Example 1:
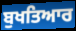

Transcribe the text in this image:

ਬੁਖਤਿਆਰ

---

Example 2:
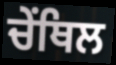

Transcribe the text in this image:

ਚੇਂਥਿਲ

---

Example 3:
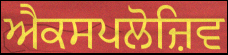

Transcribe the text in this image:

ਐਕਸਪਲੋਜ਼ਿਵ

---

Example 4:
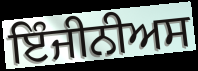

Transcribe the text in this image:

ਇੰਜੀਨੀਅਸ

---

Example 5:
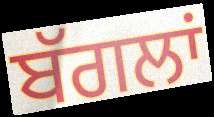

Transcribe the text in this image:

ਬੱਗਲਾਂ